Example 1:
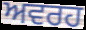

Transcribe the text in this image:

ਅਵਰਹ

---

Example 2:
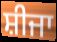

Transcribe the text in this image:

ਸ਼ੀਜਾ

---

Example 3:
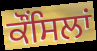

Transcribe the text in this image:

ਕੌਂਸਿਲਾਂ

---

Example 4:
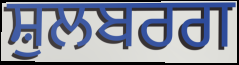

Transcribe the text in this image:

ਸ਼ੁਲਬਰਗ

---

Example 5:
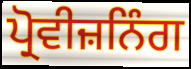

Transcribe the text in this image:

ਪ੍ਰੋਵੀਜ਼ਨਿੰਗ